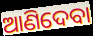
ଆଣିଦେବା